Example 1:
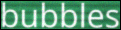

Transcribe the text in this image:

bubbles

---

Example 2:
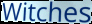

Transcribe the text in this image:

Witches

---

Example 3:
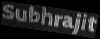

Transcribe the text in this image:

Subhrajit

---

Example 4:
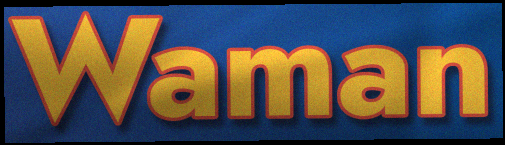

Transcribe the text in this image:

Waman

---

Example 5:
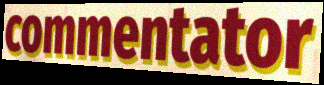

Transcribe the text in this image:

commentator